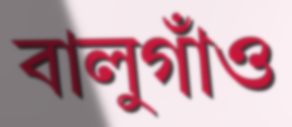
বালুগাঁও